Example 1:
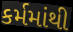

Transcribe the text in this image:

કર્મમાંથી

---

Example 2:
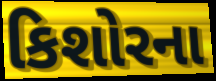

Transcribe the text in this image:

કિશોરના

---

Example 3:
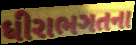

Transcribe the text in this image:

ધીરાભગતના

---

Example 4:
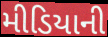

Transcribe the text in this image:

મીડિયાની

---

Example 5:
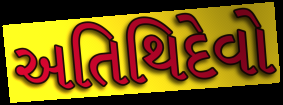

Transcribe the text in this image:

અતિથિદેવો